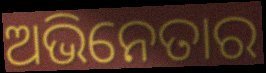
ଅଭିନେତାର